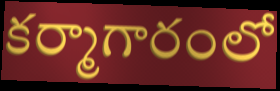
కర్మాగారంలో